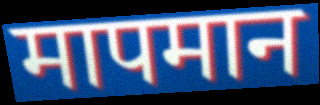
मापमान